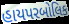
હાયપરબોલિક